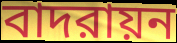
বাদরায়ন